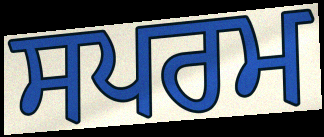
ਸਪਰਮ